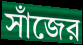
সাঁজের